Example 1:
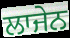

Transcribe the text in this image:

ਲਾਜੇਨ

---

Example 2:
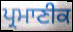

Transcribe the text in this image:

ਪ੍ਰਮਾਣੀਕ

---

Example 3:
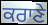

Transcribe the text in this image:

ਕਰਾਣੇ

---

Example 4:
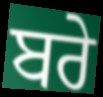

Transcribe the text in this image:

ਬਰੇ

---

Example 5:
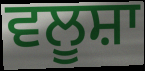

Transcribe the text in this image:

ਵਲੂਸ਼ਾ